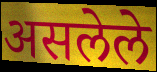
असलेले